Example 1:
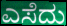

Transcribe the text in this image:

ಎಸೆದು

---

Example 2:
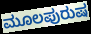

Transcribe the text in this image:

ಮೂಲಪುರುಷ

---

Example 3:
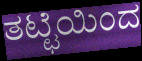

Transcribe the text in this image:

ತಟ್ಟೆಯಿಂದ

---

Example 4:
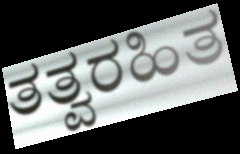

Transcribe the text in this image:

ತತ್ವರಹಿತ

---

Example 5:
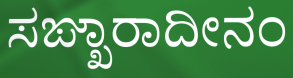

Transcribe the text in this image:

ಸಙ್ಖಾರಾದೀನಂ